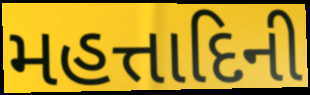
મહત્તાદિની